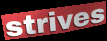
strives